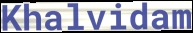
Khalvidam